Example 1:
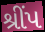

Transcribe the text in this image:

શ્રીંપ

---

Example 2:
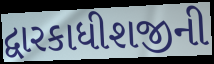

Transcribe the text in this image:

દ્વારકાધીશજીની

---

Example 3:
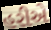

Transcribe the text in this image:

હરીએ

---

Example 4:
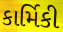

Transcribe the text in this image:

કાર્મિકી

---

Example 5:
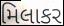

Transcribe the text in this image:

મિલાકર